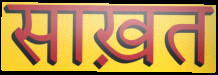
साख़त